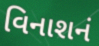
વિનાશનં